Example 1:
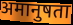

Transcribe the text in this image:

अमानुषता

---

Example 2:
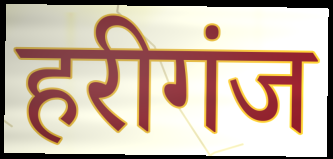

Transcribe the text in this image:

हरीगंज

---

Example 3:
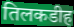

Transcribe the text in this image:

तिलकडीह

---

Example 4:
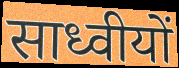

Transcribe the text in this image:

साध्वीयों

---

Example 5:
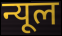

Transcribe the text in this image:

न्यूल